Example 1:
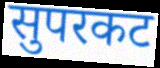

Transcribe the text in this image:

सुपरकट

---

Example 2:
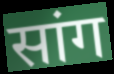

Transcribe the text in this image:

सांग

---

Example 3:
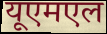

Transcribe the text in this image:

यूएमएल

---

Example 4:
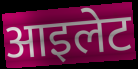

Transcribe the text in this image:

आइलेट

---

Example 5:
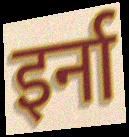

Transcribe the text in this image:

इर्ना